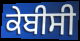
ਕੇਬੀਸੀ